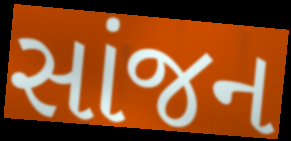
સાંજન